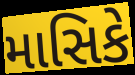
માસિકે